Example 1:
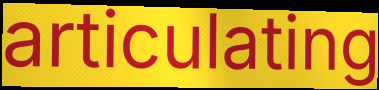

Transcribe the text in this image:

articulating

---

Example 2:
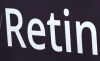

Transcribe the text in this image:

Retin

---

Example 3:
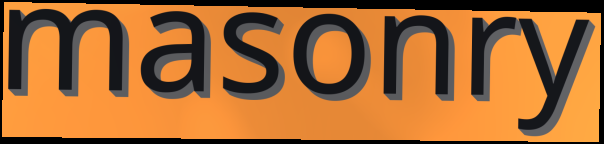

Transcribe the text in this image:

masonry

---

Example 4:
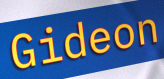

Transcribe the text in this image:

Gideon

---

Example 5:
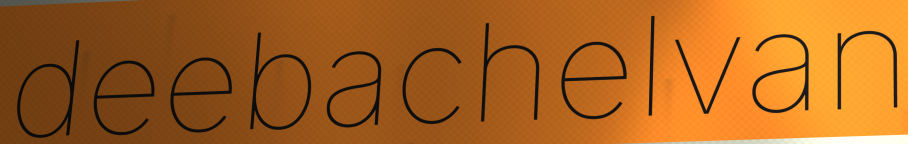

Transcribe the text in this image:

deebachelvan